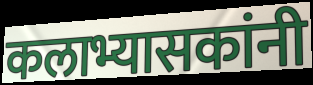
कलाभ्यासकांनी